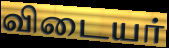
விடையர்